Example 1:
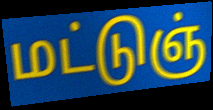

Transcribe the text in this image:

மட்டுஞ்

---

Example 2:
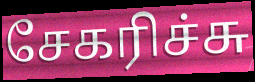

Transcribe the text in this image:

சேகரிச்சு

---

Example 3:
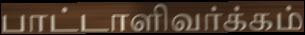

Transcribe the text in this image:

பாட்டாளிவர்க்கம்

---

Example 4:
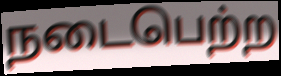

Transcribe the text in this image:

நடைபெற்ற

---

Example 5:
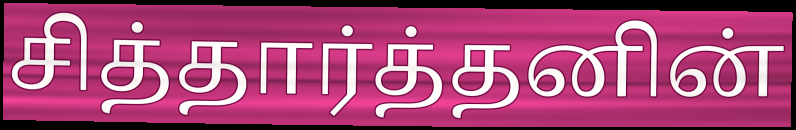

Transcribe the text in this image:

சித்தார்த்தனின்